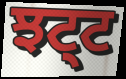
ਝਟ੍ਟ